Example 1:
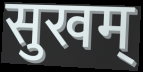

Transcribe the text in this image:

सुखम्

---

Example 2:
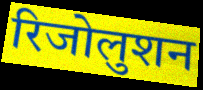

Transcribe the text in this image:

रिजोलुशन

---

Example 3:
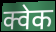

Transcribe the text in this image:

क्वेक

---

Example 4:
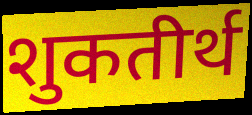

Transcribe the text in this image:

शुकतीर्थ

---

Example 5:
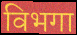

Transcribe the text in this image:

विभगा